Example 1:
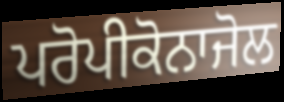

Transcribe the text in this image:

ਪਰੋਪੀਕੋਨਾਜੋਲ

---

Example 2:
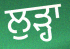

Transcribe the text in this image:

ਲੁੜ੍ਹਾ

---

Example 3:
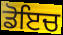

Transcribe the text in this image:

ਡੋਇਚ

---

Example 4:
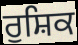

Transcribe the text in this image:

ਰੁਸ਼ਿਕ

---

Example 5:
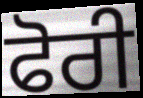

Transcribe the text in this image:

ਫੋਰੀ